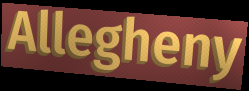
Allegheny